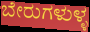
ಬೇರುಗಳುಳ್ಳ